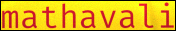
mathavali